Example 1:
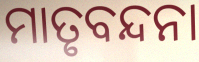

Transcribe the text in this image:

ମାତୃବନ୍ଦନା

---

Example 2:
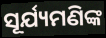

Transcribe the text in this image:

ସୂର୍ଯ୍ୟମଣିଙ୍କ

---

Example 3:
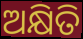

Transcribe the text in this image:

ଅକ୍ଷିତି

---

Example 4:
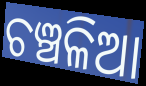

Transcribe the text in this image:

ଚଞ୍ଚଳିଆ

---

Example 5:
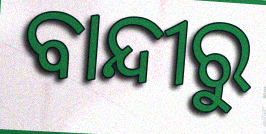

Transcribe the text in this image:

ବାନ୍ଦୀରୁ